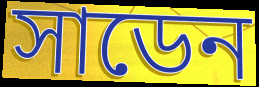
সাডেন